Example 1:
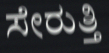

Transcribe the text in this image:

ಸೇರುತ್ತಿ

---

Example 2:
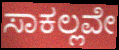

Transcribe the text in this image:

ಸಾಕಲ್ಲವೇ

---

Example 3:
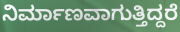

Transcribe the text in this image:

ನಿರ್ಮಾಣವಾಗುತ್ತಿದ್ದರೆ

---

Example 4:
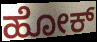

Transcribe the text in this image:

ಹೋಕ್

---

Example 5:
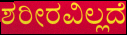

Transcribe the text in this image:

ಶರೀರವಿಲ್ಲದೆ